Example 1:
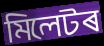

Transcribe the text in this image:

মিলেটৰ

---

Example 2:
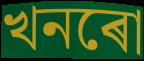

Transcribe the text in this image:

খনৰো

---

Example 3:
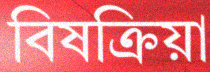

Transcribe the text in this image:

বিষক্ৰিয়া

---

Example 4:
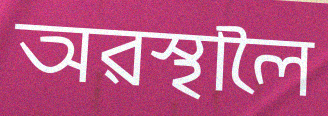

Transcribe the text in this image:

অৱস্থালৈ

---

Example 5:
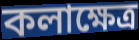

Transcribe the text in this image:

কলাক্ষেত্ৰ